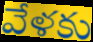
వేళకు